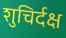
शुचिर्दक्ष